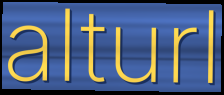
alturl